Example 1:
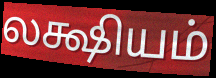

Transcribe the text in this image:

லக்ஷியம்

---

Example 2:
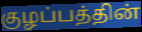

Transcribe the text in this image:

குழப்பத்தின்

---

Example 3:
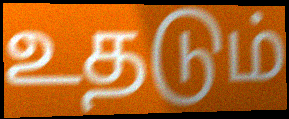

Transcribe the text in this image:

உதடும்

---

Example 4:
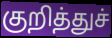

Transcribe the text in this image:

குறித்துச்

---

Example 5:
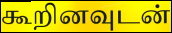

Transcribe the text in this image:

கூறினவுடன்